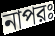
নাপরঃ